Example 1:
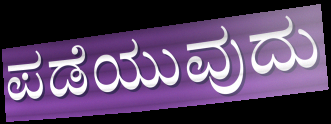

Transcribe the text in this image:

ಪಡೆಯುವುದು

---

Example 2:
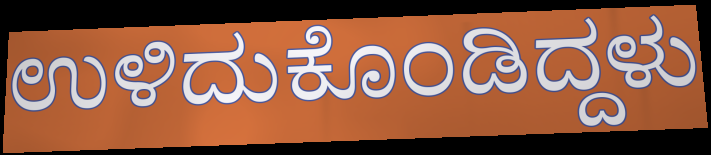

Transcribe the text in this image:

ಉಳಿದುಕೊಂಡಿದ್ದಳು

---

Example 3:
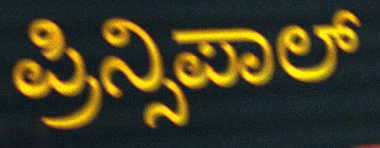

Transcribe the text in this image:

ಪ್ರಿನ್ಸಿಪಾಲ್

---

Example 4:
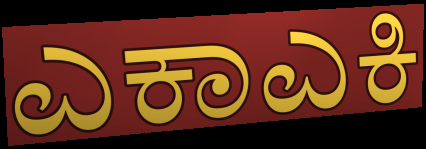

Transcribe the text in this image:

ಎಕಾಎಕಿ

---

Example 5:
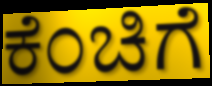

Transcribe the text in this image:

ಕೆಂಚಿಗೆ